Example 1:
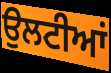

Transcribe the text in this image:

ਉਲਟੀਆਂ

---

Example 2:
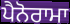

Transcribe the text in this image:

ਪੈਨੋਰਾਮਾ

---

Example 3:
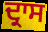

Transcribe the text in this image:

ਦ੍ਰਾਸ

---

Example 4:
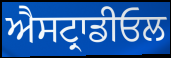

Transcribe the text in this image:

ਐਸਟ੍ਰਾਡੀਓਲ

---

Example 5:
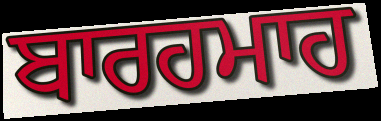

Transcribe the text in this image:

ਬਾਰਹਮਾਹ